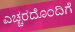
ಎಚ್ಚರದೊಂದಿಗೆ